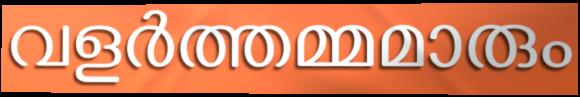
വളർത്തമ്മമാരും